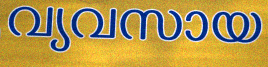
വ്യവസായ